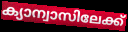
ക്യാന്വാസിലേക്ക്